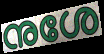
നുശേ